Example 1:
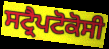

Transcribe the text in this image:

ਸਟ੍ਰੈਪਟੋਕੋਸੀ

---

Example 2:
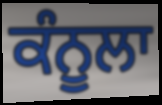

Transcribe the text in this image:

ਕੰਨੂਲਾ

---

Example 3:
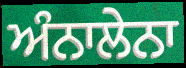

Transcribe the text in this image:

ਅੰਨਾਲੇਨਾ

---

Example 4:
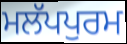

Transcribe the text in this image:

ਮਲੱਪਪੁਰਮ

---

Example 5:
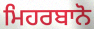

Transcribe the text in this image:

ਮਿਹਰਬਾਨੋ